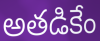
అతడికేం